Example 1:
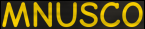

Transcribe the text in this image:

MNUSCO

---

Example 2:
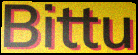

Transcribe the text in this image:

Bittu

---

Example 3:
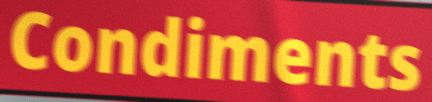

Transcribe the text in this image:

Condiments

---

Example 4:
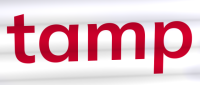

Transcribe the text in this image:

tamp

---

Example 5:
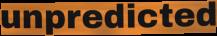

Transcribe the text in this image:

unpredicted